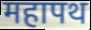
महापथ